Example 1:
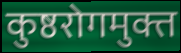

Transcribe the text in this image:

कुष्ठरोगमुक्त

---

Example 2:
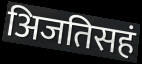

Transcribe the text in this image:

अिजतिसहं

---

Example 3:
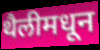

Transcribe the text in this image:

थैलीमधून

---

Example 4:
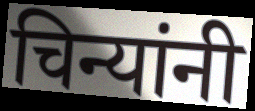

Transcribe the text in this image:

चिन्यांनी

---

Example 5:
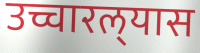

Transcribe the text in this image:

उच्चारल्यास